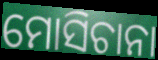
ମୋସିଚାନା